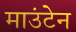
माउंटेन